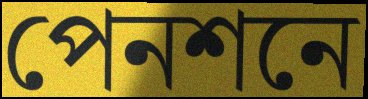
পেনশনে